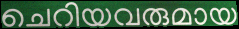
ചെറിയവരുമായ